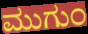
ಮುಗುಂ